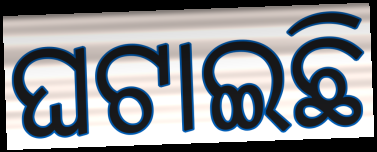
ଘଟାଇଛି